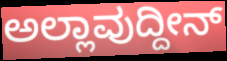
ಅಲ್ಲಾವುದ್ದೀನ್